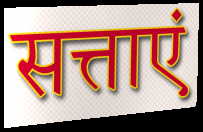
सत्ताएं